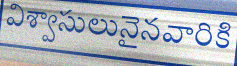
విశ్వాసులునైనవారికి